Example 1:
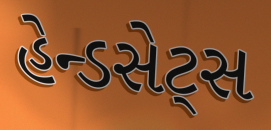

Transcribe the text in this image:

હેન્ડસેટ્સ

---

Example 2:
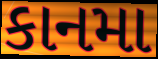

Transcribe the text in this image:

કાનમા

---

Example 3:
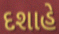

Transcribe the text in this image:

દશાહે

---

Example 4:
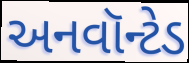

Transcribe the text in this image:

અનવૉન્ટેડ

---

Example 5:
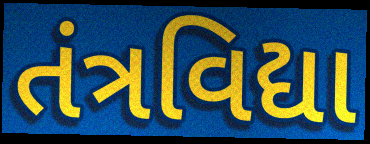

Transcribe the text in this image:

તંત્રવિદ્યા